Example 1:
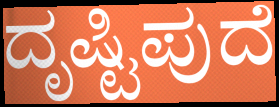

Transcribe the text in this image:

ದೃಷ್ಟಿಪುದೆ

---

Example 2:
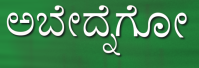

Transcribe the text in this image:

ಅಬೇದ್ನೆಗೋ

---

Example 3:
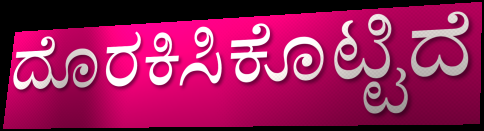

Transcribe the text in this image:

ದೊರಕಿಸಿಕೊಟ್ಟಿದೆ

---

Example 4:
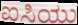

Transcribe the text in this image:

ಐಸಿಯು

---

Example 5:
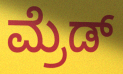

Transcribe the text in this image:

ಮ್ರೆಡ್